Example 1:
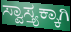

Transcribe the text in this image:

ಸ್ವಾಸ್ತ್ಯಕ್ಕಾಗಿ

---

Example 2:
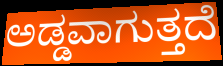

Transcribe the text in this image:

ಅಡ್ಡವಾಗುತ್ತದೆ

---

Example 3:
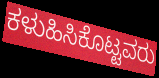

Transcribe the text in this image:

ಕಳುಹಿಸಿಕೊಟ್ಟವರು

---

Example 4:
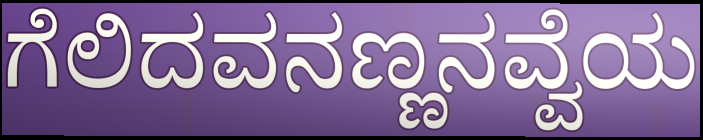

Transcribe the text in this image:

ಗೆಲಿದವನಣ್ಣನವ್ವೆಯ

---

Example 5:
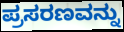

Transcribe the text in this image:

ಪ್ರಸರಣವನ್ನು